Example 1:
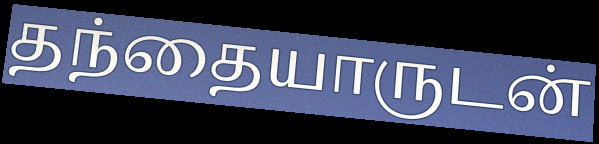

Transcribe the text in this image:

தந்தையாருடன்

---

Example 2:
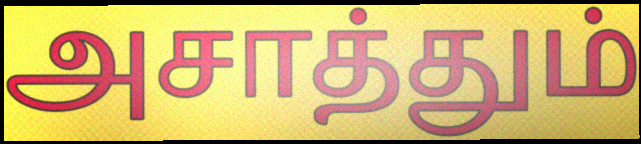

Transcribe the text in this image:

அசாத்தும்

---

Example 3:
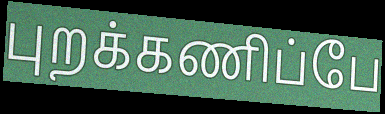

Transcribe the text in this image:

புறக்கணிப்பே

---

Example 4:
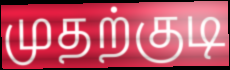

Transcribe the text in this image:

முதற்குடி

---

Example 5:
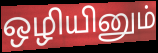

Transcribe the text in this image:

ஒழியினும்